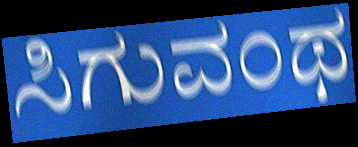
ಸಿಗುವಂಥ